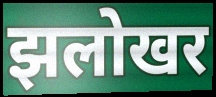
झलोखर